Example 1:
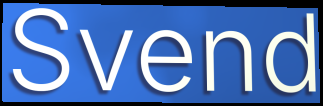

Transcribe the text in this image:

Svend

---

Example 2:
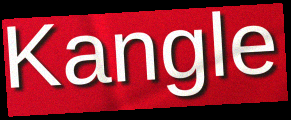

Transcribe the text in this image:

Kangle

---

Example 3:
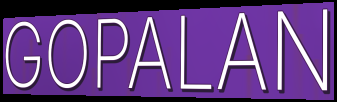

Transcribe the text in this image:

GOPALAN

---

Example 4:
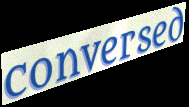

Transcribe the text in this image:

conversed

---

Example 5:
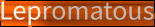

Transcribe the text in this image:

Lepromatous